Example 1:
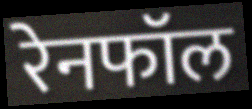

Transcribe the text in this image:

रेनफॉल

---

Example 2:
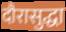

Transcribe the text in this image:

दौरासुद्धा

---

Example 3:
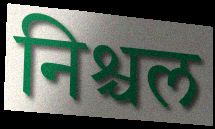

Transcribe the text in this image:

निश्चल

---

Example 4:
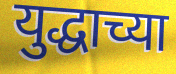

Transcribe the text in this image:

युद्धाच्या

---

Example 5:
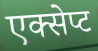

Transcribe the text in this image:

एक्सेप्ट